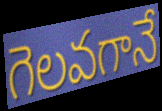
గెలవగానే